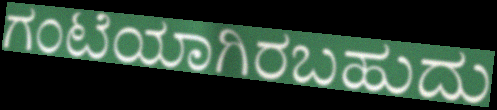
ಗಂಟೆಯಾಗಿರಬಹುದು